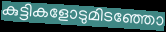
കുട്ടികളോടുമിടഞ്ഞോ